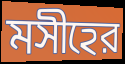
মসীহের